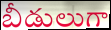
బీడులుగా